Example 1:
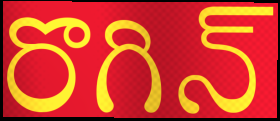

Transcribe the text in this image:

రొగిన్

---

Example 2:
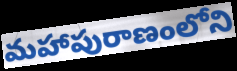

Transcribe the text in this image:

మహాపురాణంలోని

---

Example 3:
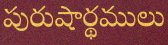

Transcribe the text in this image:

పురుషార్థములు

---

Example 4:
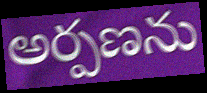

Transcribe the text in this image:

అర్పణను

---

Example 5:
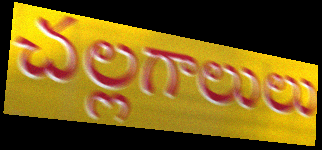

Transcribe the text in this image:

చల్లగాలులు